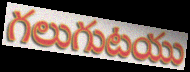
గలుగుటయు